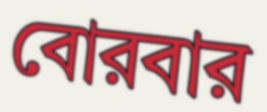
বোরবার